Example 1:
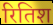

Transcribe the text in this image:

रितिश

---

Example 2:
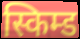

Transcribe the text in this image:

स्किम्ड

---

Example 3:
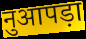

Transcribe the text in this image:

नुआपड़ा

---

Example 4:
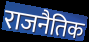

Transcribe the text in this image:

राजनैतिक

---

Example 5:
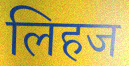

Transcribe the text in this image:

लिहज